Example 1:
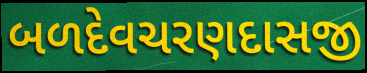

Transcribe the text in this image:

બળદેવચરણદાસજી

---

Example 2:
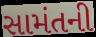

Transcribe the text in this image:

સામંતની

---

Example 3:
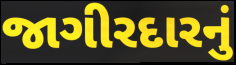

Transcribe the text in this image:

જાગીરદારનું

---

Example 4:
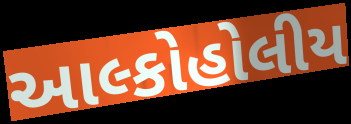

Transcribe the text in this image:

આલ્કોહોલીય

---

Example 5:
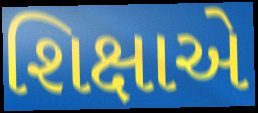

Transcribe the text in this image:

શિક્ષાએ